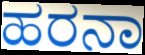
ಹರನಾ